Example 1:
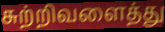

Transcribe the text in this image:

சுற்றிவளைத்து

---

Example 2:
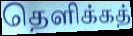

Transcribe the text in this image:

தெளிக்கத்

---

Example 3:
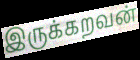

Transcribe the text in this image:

இருக்கறவன்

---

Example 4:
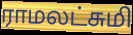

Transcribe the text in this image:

ராமலட்சுமி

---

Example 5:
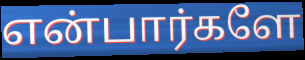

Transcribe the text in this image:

என்பார்களே